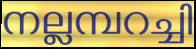
നല്ലമ്പറച്ചി